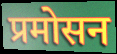
प्रमोसन